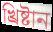
খ্রিষ্টান